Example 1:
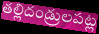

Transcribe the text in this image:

తల్లిదండ్రులపట్ల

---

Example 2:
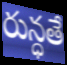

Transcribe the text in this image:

రున్ధతే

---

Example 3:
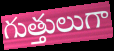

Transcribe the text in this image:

గుత్తులుగా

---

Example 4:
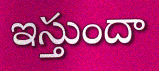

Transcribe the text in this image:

ఇస్తుందా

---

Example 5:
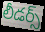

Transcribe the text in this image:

లీడర్స్